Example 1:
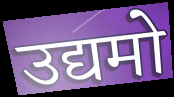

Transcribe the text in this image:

उद्यमो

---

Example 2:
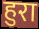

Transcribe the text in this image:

हुरा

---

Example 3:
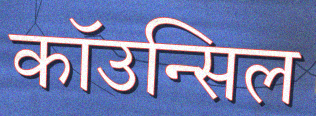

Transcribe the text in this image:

कॉउन्सिल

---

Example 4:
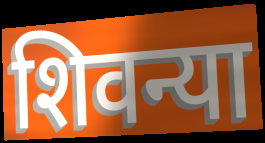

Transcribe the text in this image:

शिवन्या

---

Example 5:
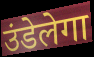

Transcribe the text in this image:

उंडेलेगा